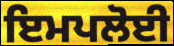
ਇਮਪਲੋਈ